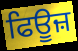
ਫਿਊਜ਼